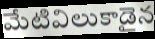
మేటివిలుకాడైన